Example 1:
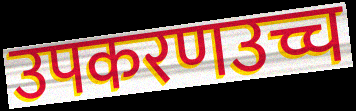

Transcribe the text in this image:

उपकरणउच्च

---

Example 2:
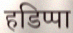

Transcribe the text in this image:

हडिप्पा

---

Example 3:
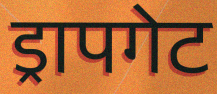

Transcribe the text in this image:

ड्रापगेट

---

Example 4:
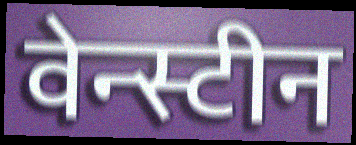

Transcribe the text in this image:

वेन्स्टीन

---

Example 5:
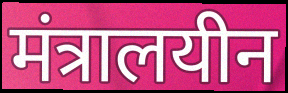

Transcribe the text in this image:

मंत्रालयीन